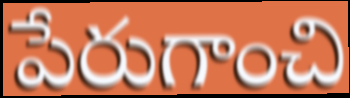
పేరుగాంచి